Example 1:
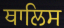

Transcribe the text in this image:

ਥਾਲਿਸ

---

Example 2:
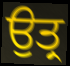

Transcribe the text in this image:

ਉਤ੍ਰ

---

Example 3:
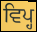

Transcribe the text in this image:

ਵਿਪ੍ਹ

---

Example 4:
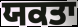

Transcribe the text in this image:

ਯਕਤਾ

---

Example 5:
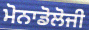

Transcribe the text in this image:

ਮੋਨਾਡੋਲੋਜੀ